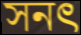
সনৎ